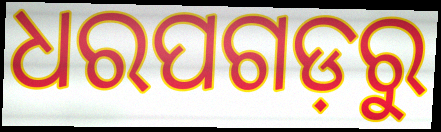
ଧରପଗଡ଼ରୁ